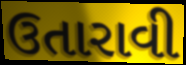
ઉતારાવી